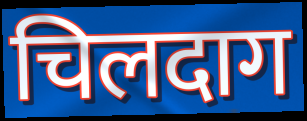
चिलदाग